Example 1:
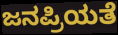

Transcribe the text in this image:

ಜನಪ್ರಿಯತೆ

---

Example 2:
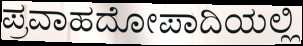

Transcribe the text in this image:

ಪ್ರವಾಹದೋಪಾದಿಯಲ್ಲಿ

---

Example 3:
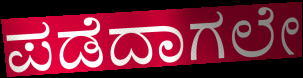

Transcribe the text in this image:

ಪಡೆದಾಗಲೇ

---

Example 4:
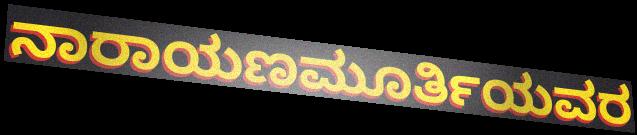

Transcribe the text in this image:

ನಾರಾಯಣಮೂರ್ತಿಯವರ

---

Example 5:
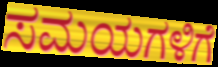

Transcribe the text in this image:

ಸಮಯಗಳಿಗೆ